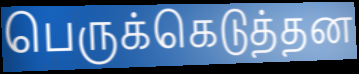
பெருக்கெடுத்தன